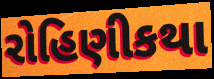
રોહિણીકથા